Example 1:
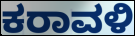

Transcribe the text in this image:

ಕರಾವಳಿ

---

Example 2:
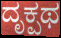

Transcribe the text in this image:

ದೃಕ್ಪಥ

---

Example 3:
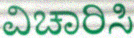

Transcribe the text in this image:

ವಿಚಾರಿಸಿ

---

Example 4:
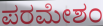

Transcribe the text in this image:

ಪರಮೇಶಂ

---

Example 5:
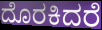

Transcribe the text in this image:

ದೊರಕಿದರೆ